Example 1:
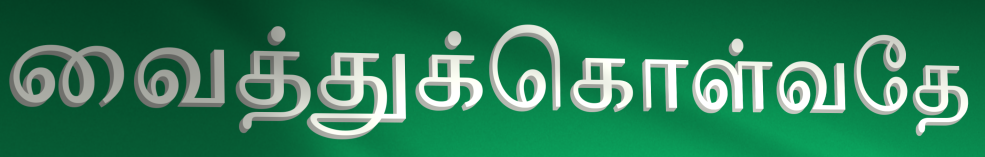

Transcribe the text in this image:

வைத்துக்கொள்வதே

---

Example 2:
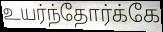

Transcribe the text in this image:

உயர்ந்தோர்க்கே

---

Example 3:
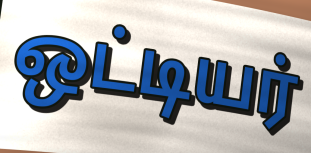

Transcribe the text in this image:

ஒட்டியர்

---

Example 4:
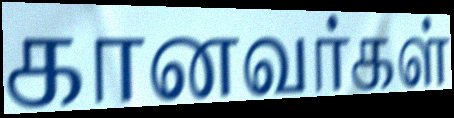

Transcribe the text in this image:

கானவர்கள்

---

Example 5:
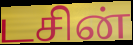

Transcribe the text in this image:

டசின்